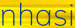
nhasi